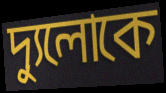
দ্যুলোকে